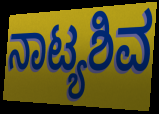
ನಾಟ್ಯಶಿವ